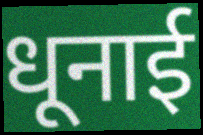
धूनाई